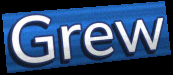
Grew